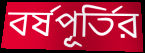
বর্ষপূর্তির